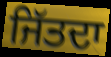
ਜਿੱਤਦਾ